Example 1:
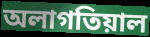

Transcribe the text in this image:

অলাগতিয়াল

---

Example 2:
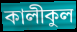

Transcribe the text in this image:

কালীকুল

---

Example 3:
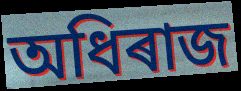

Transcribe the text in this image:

অধিৰাজ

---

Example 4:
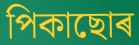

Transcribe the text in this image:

পিকাছোৰ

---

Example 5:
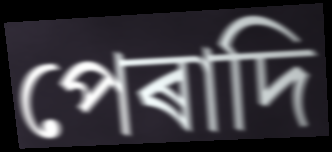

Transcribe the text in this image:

পেৰাদি